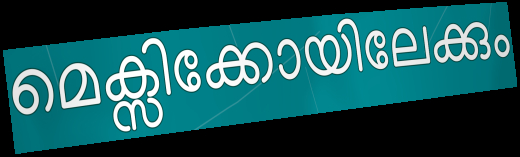
മെക്സിക്കോയിലേക്കും